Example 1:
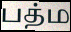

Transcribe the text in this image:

பத்ம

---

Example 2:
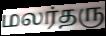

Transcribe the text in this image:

மலர்தரு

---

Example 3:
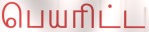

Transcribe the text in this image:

பெயரிட்ட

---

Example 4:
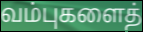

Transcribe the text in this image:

வம்புகளைத்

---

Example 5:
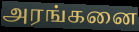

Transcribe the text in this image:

அரங்கனை